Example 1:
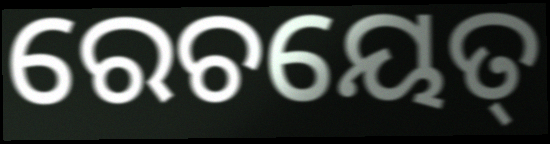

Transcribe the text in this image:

ରେଚୟେତ୍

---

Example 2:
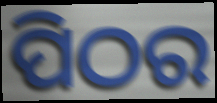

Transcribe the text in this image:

ପିଠର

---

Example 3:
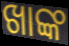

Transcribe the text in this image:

ଖାଙ୍କ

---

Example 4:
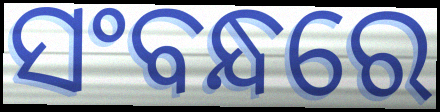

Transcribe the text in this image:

ସଂବନ୍ଧରେ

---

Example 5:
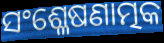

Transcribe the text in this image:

ସଂଶ୍ଳେଷଣାତ୍ମକ